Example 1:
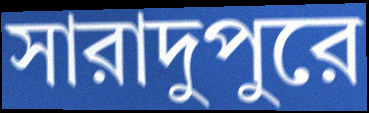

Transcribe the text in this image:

সারাদুপুরে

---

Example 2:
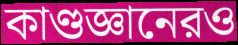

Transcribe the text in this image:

কাণ্ডজ্ঞানেরও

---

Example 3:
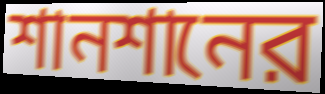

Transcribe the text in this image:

শানশানের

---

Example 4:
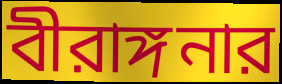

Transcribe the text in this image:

বীরাঙ্গনার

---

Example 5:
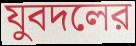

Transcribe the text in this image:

যুবদলের